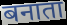
बनाता